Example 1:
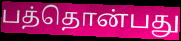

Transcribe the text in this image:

பத்தொன்பது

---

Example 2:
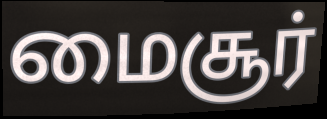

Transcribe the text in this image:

மைசூர்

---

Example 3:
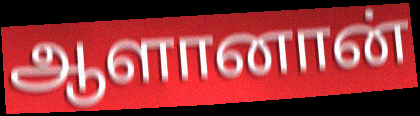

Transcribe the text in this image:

ஆளானான்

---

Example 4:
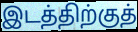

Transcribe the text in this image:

இடத்திற்குத்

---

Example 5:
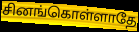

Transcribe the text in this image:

சினங்கொள்ளாதே